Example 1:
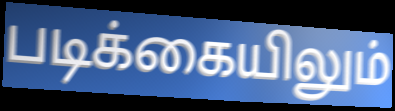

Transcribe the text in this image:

படிக்கையிலும்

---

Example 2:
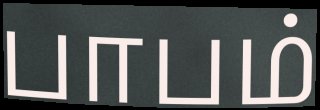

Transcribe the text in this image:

பாபம்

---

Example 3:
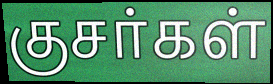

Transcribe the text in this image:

குசர்கள்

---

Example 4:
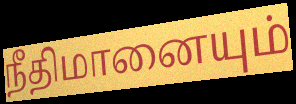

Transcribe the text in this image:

நீதிமானையும்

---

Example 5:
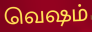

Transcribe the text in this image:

வெஷம்